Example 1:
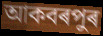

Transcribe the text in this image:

আকবৰপুৰ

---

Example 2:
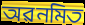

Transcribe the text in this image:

অৱনমিত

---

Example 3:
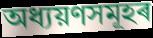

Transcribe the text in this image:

অধ্যয়ণসমূহৰ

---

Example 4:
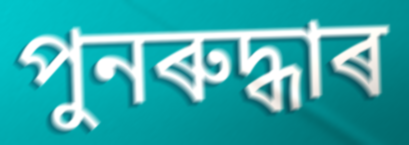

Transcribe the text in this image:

পুনৰুদ্ধাৰ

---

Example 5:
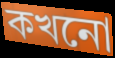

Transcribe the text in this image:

কখনো